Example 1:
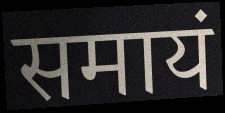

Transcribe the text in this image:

समायं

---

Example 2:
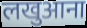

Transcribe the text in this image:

लखुआना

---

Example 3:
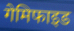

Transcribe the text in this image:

गेमिफाइड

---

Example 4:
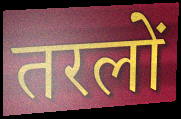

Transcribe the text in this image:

तरलों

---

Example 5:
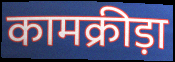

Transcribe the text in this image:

कामक्रीड़ा